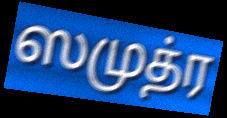
ஸமுத்ர